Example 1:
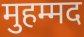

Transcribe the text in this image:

मुहम्मद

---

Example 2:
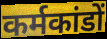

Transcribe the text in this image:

कर्मकांडों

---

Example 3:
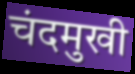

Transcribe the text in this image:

चंदमुखी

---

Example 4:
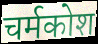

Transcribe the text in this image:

चर्मकोश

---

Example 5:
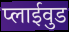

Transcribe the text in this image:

प्लाईवुड